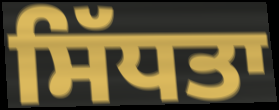
ਸਿੱਧਤਾ